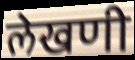
लेखणी